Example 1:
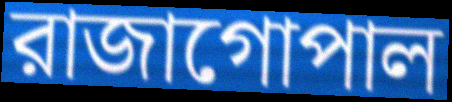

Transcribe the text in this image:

রাজাগোপাল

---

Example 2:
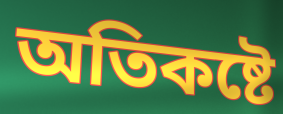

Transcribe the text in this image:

অতিকষ্টে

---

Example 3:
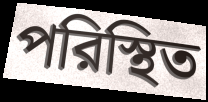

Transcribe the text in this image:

পরিস্থিত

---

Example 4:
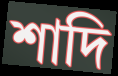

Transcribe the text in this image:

শাদি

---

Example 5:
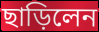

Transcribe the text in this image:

ছাড়িলেন